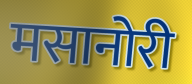
मसानोरी